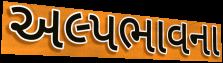
અલ્પભાવના